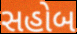
સહોબ